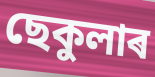
ছেকুলাৰ